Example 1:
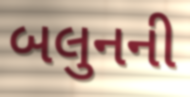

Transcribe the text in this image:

બલુનની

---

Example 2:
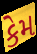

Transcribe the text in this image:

કેમ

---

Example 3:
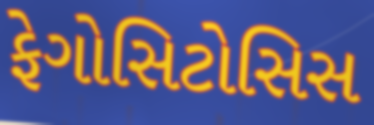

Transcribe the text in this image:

ફેગોસિટોસિસ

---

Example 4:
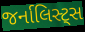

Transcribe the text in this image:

જર્નાલિસ્ટ્સ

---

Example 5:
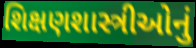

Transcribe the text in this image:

શિક્ષણશાસ્ત્રીઓનું